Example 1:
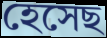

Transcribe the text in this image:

হেসেছ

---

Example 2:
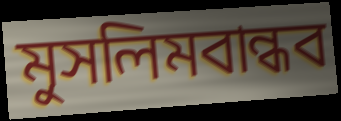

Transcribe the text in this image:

মুসলিমবান্ধব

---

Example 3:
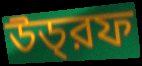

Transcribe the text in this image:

উড্‌রফ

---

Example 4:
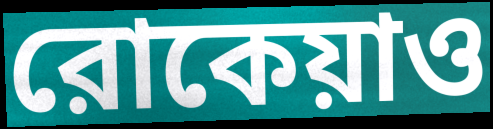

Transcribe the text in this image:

রোকেয়াও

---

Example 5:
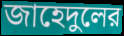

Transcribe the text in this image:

জাহেদুলের